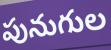
పునుగుల